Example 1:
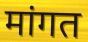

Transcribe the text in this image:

मांगत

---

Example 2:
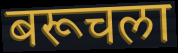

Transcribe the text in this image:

बरूचला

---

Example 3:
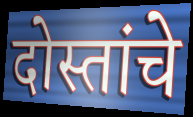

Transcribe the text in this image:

दोस्तांचे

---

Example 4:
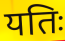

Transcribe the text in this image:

यतिः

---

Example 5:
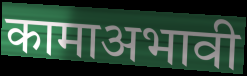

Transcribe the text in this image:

कामाअभावी